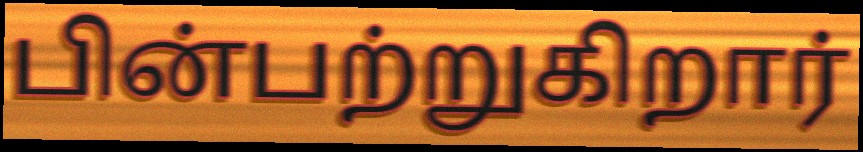
பின்பற்றுகிறார்